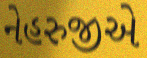
નેહરુજીએ